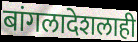
बांगलादेशलाही